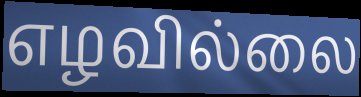
எழவில்லை